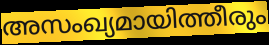
അസംഖ്യമായിത്തീരും